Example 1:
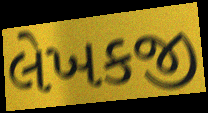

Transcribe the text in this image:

લેખકજી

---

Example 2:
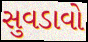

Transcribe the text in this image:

સુવડાવો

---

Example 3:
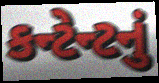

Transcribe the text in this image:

કન્ટેન્ટનું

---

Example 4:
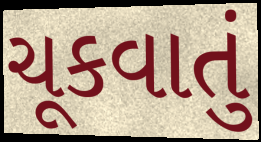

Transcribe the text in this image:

ચૂકવાતું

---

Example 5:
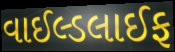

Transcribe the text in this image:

વાઈલ્ડલાઈફ